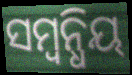
ସମ୍ଵନ୍ଧିୟ